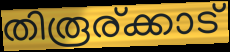
തിരൂര്ക്കാട്